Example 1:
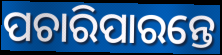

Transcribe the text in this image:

ପଚାରିପାରନ୍ତେ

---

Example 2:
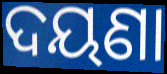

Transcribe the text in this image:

ଦୟଣା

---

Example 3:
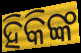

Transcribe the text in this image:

ହିକିଙ୍କ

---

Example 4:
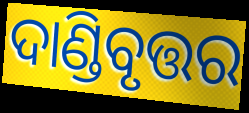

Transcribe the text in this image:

ଦାଣ୍ଡିବୃତ୍ତର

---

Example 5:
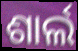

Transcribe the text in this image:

ଶାର୍ଲ